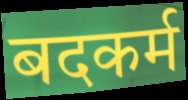
बदकर्म